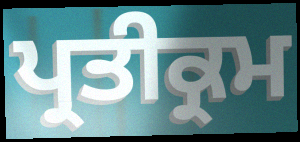
ਪ੍ਰਤੀਕ੍ਰਮ